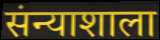
संन्याशाला